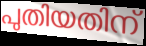
പുതിയതിന്